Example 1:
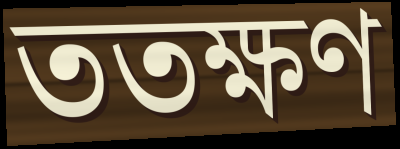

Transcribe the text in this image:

ততক্ষণ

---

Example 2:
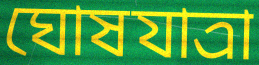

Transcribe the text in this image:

ঘোষযাত্রা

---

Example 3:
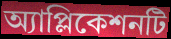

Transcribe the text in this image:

অ্যাপ্লিকেশনটি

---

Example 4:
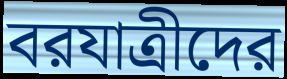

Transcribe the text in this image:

বরযাত্রীদের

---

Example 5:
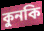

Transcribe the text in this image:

কুনকি